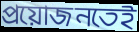
প্ৰয়োজনতেই